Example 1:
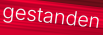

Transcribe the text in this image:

gestanden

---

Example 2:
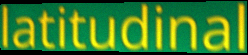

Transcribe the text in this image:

latitudinal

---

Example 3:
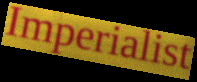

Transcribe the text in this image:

Imperialist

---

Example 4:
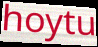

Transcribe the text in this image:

hoytu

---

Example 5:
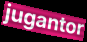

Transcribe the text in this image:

jugantor